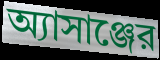
অ্যাসাঞ্জের